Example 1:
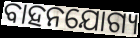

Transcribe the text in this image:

ବାହନଯୋଗ୍ୟ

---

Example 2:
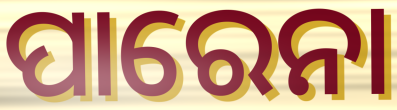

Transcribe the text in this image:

ପାରେନା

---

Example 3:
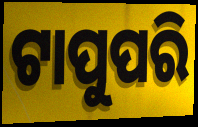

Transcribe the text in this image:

ଟାପୁପରି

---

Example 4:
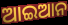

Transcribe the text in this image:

ଆଇଆନ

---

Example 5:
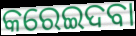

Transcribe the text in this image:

କରେଇଦବା